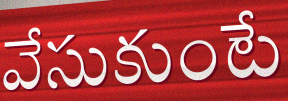
వేసుకుంటే